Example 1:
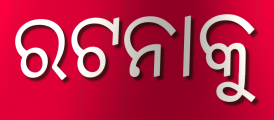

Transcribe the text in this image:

ରଟନାକୁ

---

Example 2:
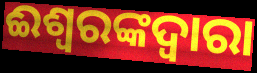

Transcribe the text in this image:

ଈଶ୍ୱରଙ୍କଦ୍ୱାରା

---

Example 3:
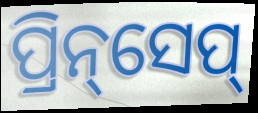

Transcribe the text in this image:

ପ୍ରିନ୍‌ସେପ୍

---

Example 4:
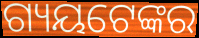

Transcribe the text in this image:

ଗ୍ୟୟଟେଙ୍କର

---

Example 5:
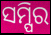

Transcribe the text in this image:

ସମ୍ପିର